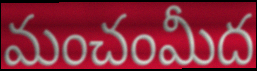
మంచంమీద